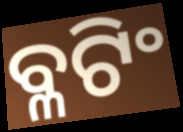
ବ୍ଳଟିଂ